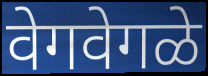
वेगवेगळे